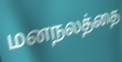
மனநலத்தை